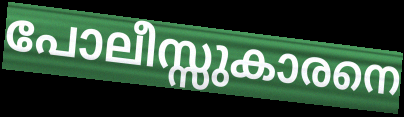
പോലീസ്സുകാരനെ